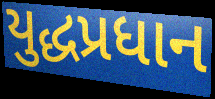
યુદ્ધપ્રધાન